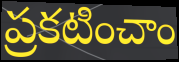
ప్రకటించాం